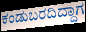
ಕಂಡುಬರದಿದ್ದಾಗ